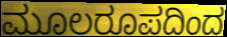
ಮೂಲರೂಪದಿಂದ